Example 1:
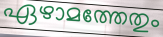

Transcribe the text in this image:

ഏഴാമത്തേതും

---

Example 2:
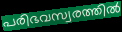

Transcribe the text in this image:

പരിഭവസ്വരത്തിൽ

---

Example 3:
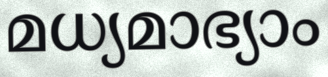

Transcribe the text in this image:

മധ്യമാഭ്യാം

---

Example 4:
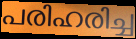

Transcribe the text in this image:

പരിഹരിച്ച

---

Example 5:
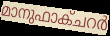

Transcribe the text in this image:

മാനുഫാക്ചറർ